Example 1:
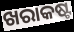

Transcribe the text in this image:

ଖରାକଷ୍ଟ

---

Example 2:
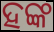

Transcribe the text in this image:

ହଙ୍କ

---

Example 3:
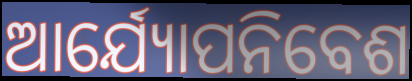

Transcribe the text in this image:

ଆର୍ଯ୍ୟୋପନିବେଶ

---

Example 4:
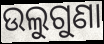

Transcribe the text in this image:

ଉଲୁଗୁଣା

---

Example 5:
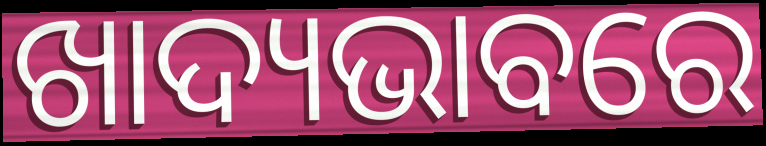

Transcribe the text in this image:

ଖାଦ୍ୟଭାବରେ